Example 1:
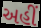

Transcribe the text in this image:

અહીં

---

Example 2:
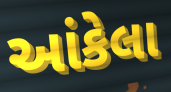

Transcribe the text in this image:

આંકેલા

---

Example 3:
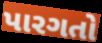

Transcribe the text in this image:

પારગતો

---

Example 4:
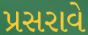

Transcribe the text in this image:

પ્રસરાવે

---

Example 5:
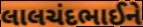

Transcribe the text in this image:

લાલચંદભાઈને